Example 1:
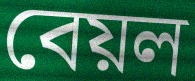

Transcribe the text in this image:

বেয়ল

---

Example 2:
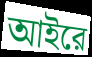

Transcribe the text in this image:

আইরে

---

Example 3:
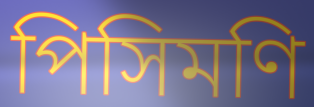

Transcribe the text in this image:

পিসিমণি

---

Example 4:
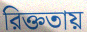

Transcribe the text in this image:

রিক্ততায়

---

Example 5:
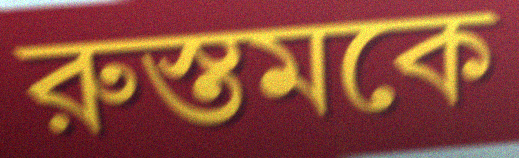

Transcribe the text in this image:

রুস্তমকে